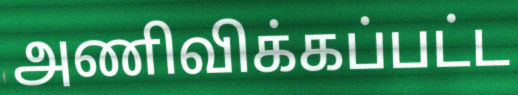
அணிவிக்கப்பட்ட